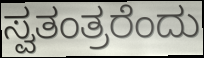
ಸ್ವತಂತ್ರರೆಂದು